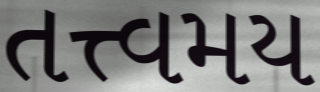
તત્ત્વમય